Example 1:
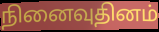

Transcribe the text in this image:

நினைவுதினம்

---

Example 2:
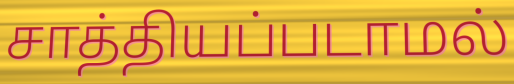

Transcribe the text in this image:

சாத்தியப்படாமல்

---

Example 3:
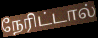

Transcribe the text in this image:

நேரிட்டால்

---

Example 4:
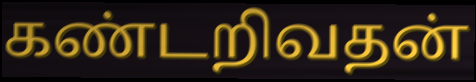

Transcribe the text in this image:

கண்டறிவதன்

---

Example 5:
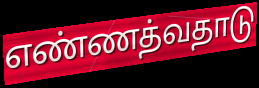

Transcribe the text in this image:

எண்ணத்வதாடு